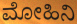
ಮೋಹಿನಿ